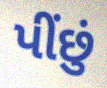
પીંછું